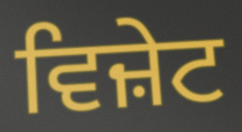
ਵਿਜ਼ੇਟ